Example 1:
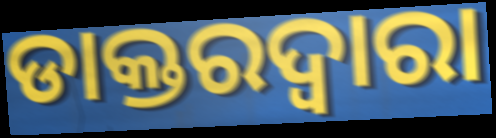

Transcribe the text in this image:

ଡାକ୍ତରଦ୍ୱାରା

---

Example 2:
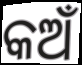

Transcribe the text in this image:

କଅଁ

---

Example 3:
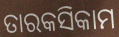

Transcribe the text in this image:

ତାରକସିକାମ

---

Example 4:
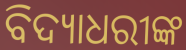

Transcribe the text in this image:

ବିଦ୍ୟାଧରୀଙ୍କ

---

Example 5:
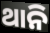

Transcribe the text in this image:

ଥାନି